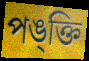
পঙ্‌ক্তি